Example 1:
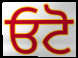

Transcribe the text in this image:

ਓਟੋ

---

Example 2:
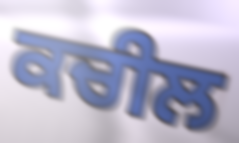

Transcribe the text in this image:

ਕਚੀਲ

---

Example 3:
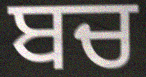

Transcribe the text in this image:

ਬਚ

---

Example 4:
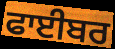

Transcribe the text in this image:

ਫਾਈਬਰ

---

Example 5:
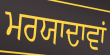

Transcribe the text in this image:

ਮਰਯਾਦਾਵਾਂ